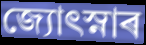
জ্যোৎস্নাৰ